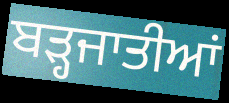
ਬੜ੍ਹਜਾਤੀਆਂ